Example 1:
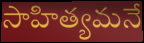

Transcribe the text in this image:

సాహిత్యమనే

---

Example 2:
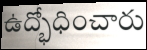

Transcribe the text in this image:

ఉద్భోధించారు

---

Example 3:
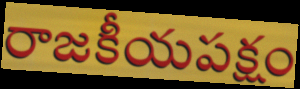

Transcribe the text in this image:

రాజకీయపక్షం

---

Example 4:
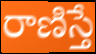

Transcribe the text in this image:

రాణిస్తే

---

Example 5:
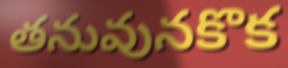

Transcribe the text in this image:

తనువునకొక